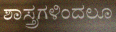
ಶಾಸ್ತ್ರಗಳಿಂದಲೂ